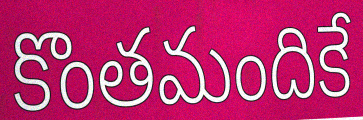
కొంతమందికే